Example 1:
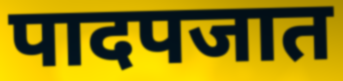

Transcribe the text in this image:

पादपजात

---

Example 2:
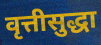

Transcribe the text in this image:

वृत्तीसुद्धा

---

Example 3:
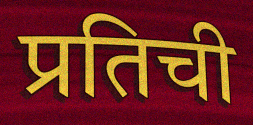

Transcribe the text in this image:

प्रतिची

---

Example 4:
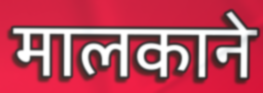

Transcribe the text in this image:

मालकाने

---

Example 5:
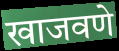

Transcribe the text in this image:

खाजवणे